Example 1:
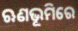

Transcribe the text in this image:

ଋଣଭୂମିରେ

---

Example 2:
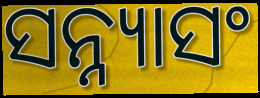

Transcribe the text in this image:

ସନ୍ନ୍ୟାସଂ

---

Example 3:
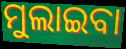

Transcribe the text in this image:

ମୁଲାଇବା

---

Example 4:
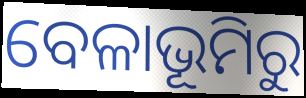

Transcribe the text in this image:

ବେଳାଭୂମିରୁ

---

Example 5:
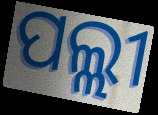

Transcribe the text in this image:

ପଲ୍ଲୀ